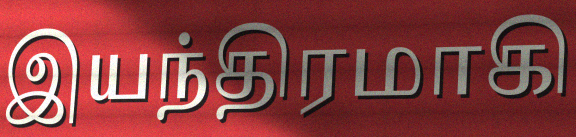
இயந்திரமாகி